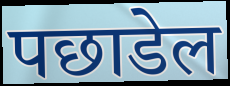
पछाडेल